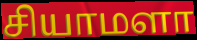
சியாமளா